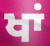
ਖਾਂ